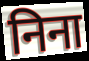
निना